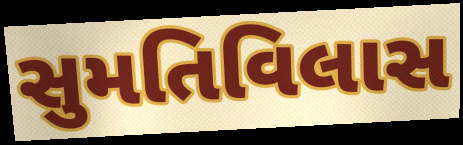
સુમતિવિલાસ